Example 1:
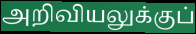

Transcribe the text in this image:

அறிவியலுக்குப்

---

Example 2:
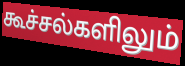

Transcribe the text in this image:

கூச்சல்களிலும்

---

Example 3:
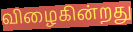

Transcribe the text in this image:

விழைகின்றது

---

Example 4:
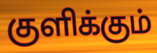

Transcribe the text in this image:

குளிக்கும்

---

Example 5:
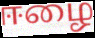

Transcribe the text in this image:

ஈழை